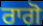
ਰਾਗੋ